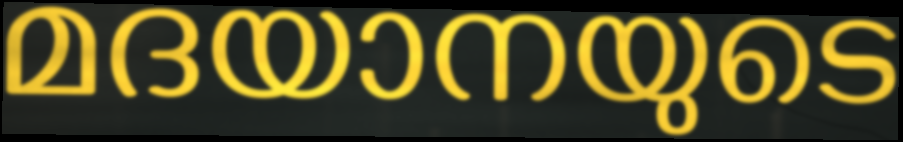
മദയാനയുടെ